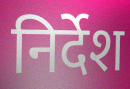
निर्देश